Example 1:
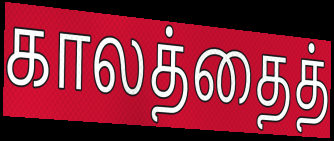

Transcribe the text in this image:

காலத்தைத்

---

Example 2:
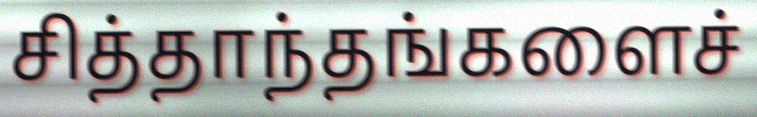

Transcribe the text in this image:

சித்தாந்தங்களைச்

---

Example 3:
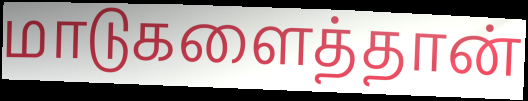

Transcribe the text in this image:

மாடுகளைத்தான்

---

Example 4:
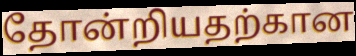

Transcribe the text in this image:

தோன்றியதற்கான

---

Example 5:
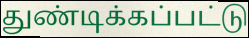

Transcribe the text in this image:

துண்டிக்கப்பட்டு